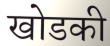
खोडकी